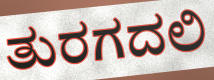
ತುರಗದಲಿ